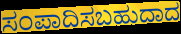
ಸಂಪಾದಿಸಬಹುದಾದ